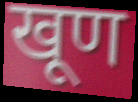
खूण